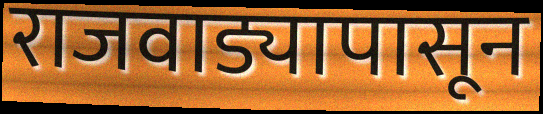
राजवाड्यापासून